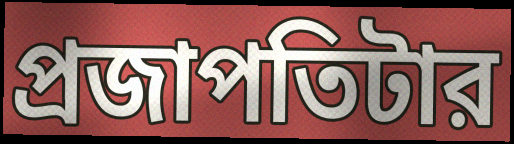
প্রজাপতিটার